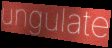
ungulate